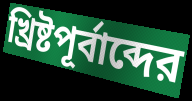
খ্রিষ্টপূর্বাব্দের